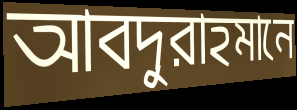
আবদুরাহমানে